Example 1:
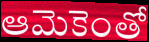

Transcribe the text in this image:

ఆమెకెంతో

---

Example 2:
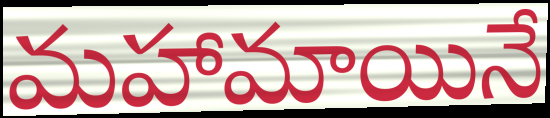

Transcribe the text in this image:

మహామాయినే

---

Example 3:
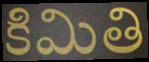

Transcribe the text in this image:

కిమితి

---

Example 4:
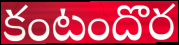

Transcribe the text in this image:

కంటందొర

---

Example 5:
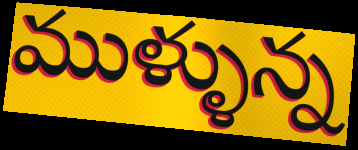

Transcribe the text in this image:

ముళ్ళున్న